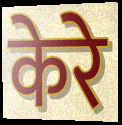
केरे